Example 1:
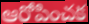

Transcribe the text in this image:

ఆరోపించక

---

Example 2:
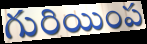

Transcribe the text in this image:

గురియింప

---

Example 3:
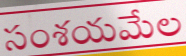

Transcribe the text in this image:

సంశయమేల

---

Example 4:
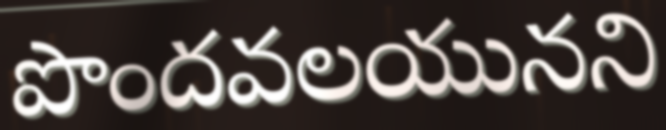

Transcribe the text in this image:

పొందవలయునని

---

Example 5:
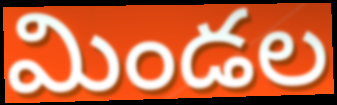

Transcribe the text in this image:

మిండల